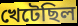
খেটেছিল